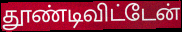
தூண்டிவிட்டேன்